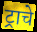
ट्राचे